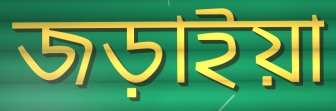
জড়াইয়া